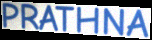
PRATHNA